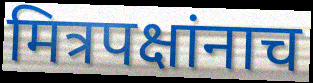
मित्रपक्षांनाच